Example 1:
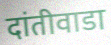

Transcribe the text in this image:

दांतीवाडा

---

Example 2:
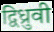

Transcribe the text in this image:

द्विध्रुवी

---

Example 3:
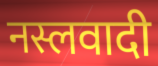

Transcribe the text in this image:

नस्लवादी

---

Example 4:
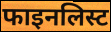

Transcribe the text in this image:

फाइनलिस्ट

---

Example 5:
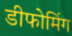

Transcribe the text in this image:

डीफोमिंग